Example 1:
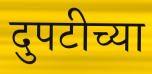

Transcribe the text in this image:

दुपटीच्या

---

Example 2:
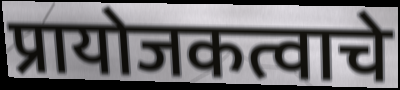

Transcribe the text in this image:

प्रायोजकत्वाचे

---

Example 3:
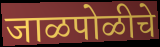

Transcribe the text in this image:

जाळपोळीचे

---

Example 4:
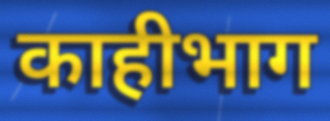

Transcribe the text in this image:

काहीभाग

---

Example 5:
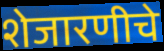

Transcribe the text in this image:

शेजारणीचे